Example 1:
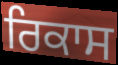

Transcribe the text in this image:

ਰਿਕਾਸ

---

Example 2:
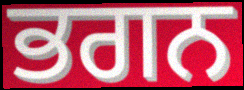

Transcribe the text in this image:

ਭਗਨ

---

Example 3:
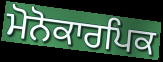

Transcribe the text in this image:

ਮੋਨੋਕਾਰਪਿਕ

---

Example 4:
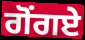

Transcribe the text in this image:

ਗੋਂਗਏ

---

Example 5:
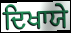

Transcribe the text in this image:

ਦਿਖਾਯੇ